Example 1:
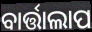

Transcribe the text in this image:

ବାର୍ତ୍ତାଲାପ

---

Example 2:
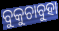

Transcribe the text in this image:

ବୁକୁଚାବୁହା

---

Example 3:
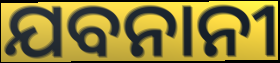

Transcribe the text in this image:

ଯବନାନୀ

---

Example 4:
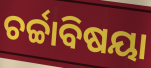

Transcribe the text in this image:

ଚର୍ଚ୍ଚାବିଷୟା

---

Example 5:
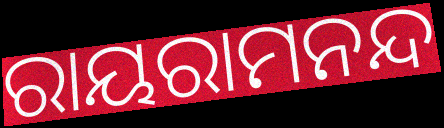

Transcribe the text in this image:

ରାୟରାମନନ୍ଦ